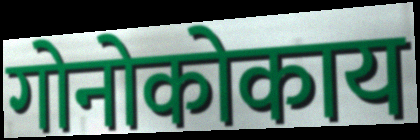
गोनोकोकाय